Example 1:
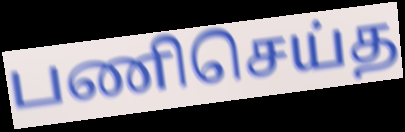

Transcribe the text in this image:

பணிசெய்த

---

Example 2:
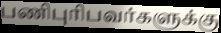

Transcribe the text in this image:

பணிபுரிபவர்களுக்கு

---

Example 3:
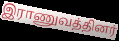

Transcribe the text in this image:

இராணுவத்தினர்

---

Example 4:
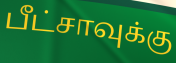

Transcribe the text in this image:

பீட்சாவுக்கு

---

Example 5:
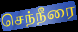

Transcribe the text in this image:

செந்நீரை